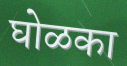
घोळका